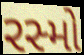
રસ્મો